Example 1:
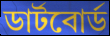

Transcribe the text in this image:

ডার্টবোর্ড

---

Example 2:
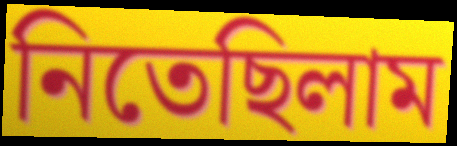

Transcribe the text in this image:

নিতেছিলাম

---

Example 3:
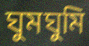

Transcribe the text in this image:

ঘুমঘুমি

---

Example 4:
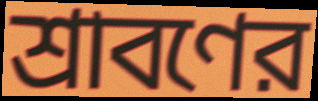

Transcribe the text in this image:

শ্রাবণের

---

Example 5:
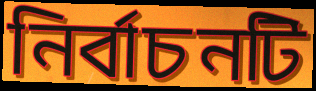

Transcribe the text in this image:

নির্বাচনটি